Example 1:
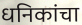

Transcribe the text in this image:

धनिकांचा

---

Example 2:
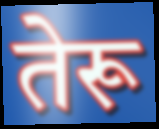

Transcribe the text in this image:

तेरू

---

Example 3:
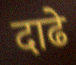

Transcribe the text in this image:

दाढे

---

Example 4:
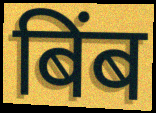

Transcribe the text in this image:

बिंब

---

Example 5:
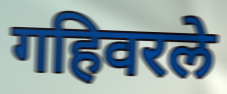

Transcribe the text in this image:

गहिवरले